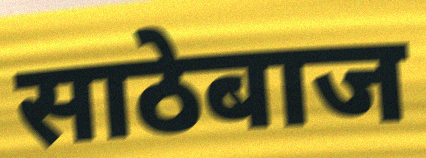
साठेबाज